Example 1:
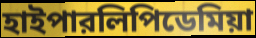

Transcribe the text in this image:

হাইপারলিপিডেমিয়া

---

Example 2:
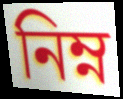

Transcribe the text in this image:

নিম্ন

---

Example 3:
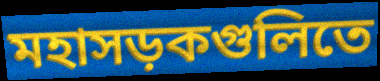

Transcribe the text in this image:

মহাসড়কগুলিতে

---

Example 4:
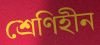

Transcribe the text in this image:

শ্রেণিহীন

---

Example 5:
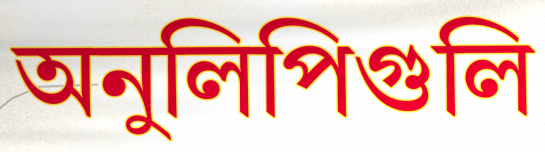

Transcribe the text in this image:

অনুলিপিগুলি